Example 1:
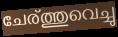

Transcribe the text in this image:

ചേര്ത്തുവെച്ചു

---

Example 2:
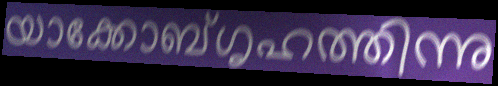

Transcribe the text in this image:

യാക്കോബ്ഗൃഹത്തിന്നു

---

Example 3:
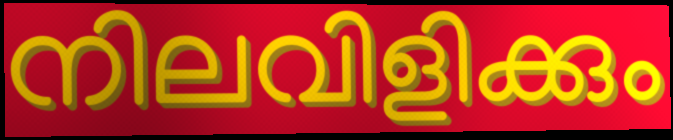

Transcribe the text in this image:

നിലവിളിക്കും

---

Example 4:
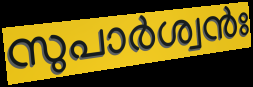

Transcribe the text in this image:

സുപാർശ്വൻഃ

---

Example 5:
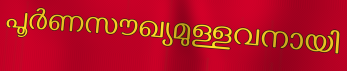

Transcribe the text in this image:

പൂർണസൗഖ്യമുള്ളവനായി